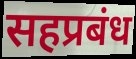
सहप्रबंध